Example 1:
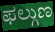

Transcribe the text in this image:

ಫಲ್ಗುಣ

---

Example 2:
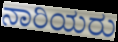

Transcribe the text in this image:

ನಾರಿಯರು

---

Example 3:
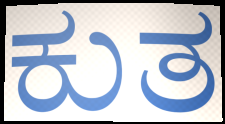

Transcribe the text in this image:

ಕುತ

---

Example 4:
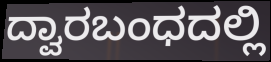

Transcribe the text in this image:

ದ್ವಾರಬಂಧದಲ್ಲಿ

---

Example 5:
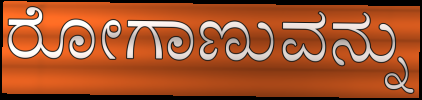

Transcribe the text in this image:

ರೋಗಾಣುವನ್ನು